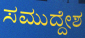
ಸಮುದ್ದೇಶ